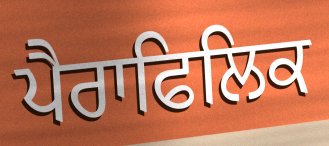
ਪੈਰਾਫਿਲਿਕ